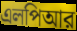
এলপিআর